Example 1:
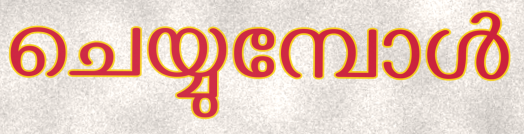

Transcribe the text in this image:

ചെയ്യുമ്പോൾ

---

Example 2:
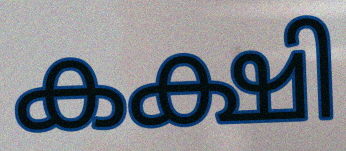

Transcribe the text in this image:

കക്ഷി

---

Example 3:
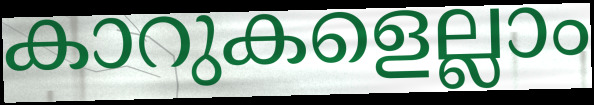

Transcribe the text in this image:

കാറുകളെല്ലാം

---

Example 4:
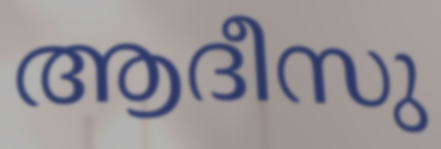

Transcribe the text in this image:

ആദീസു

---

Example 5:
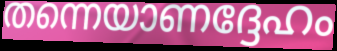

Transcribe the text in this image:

തന്നെയാണദ്ദേഹം